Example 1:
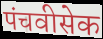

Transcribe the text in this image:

पंचवीसेक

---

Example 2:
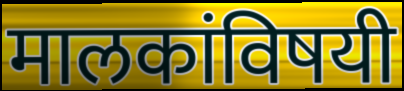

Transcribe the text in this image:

मालकांविषयी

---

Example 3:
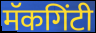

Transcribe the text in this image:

मॅकगिंटी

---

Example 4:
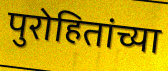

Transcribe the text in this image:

पुरोहितांच्या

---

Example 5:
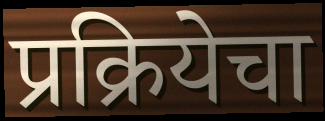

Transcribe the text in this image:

प्रक्रियेचा